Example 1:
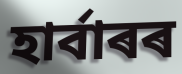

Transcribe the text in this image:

হাৰ্বাৰৰ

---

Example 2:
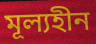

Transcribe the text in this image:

মূল্যহীন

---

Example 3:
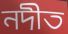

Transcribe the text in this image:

নদীত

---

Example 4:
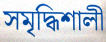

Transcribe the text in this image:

সমৃদ্ধিশালী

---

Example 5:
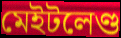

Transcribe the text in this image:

মেইটলেণ্ড